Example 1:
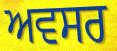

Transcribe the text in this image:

ਅਵਸਰ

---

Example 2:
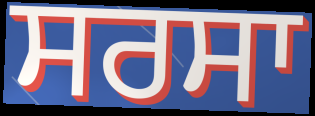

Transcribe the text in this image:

ਸਰਸਾ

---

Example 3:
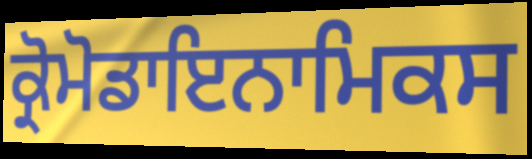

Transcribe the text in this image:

ਕ੍ਰੋਮੋਡਾਇਨਾਮਿਕਸ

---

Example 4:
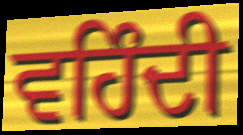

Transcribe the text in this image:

ਵਹਿੰਦੀ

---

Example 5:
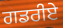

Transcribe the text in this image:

ਗਡਰੀਏ